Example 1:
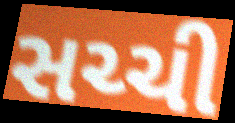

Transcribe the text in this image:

સચ્ચી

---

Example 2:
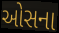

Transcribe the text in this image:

ઓસના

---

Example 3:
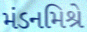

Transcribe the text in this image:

મંડનમિશ્રે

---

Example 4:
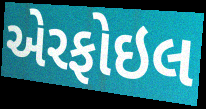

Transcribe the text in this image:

એરફોઇલ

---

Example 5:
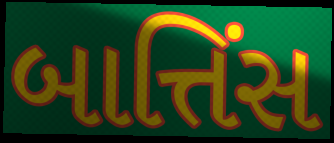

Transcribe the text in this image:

બાત્તિંસ